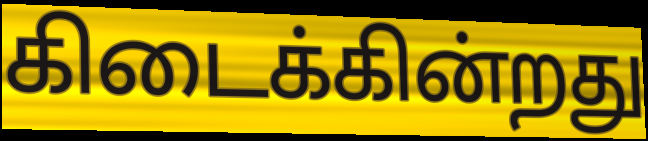
கிடைக்கின்றது